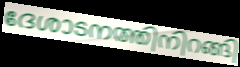
ദേശാടനത്തിനിറങ്ങി